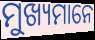
ମୁଖ୍ୟମାନେ